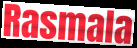
Rasmala